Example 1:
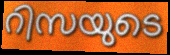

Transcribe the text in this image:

റിസയുടെ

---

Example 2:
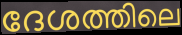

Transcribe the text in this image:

ദേശത്തിലെ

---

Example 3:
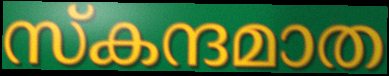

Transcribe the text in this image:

സ്കന്ദമാത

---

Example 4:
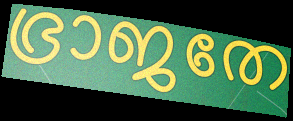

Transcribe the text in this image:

ഭ്രാജതേ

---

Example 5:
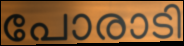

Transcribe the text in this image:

പോരാടി